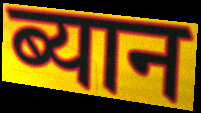
ब्यान